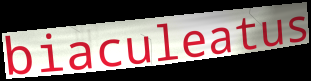
biaculeatus